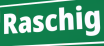
Raschig